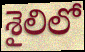
శైలిలో